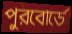
পুরবোর্ডে